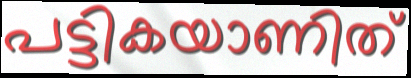
പട്ടികയാണിത്